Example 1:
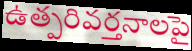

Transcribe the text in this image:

ఉత్పరివర్తనాలపై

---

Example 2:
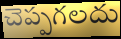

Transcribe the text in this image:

చెప్పగలదు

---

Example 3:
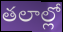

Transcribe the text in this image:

తలాల్లో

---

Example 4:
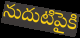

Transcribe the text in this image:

నుదుటిపైకి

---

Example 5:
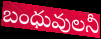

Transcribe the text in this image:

బంధువులనీ